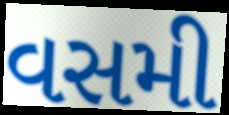
વસમી